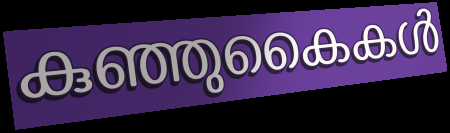
കുഞ്ഞുകൈകൾ